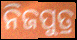
ନିଜପୁତ୍ର